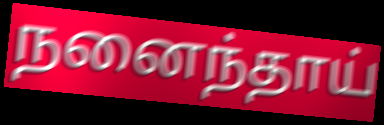
நனைந்தாய்